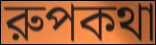
রুপকথা